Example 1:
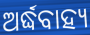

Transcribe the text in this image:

ଅର୍ଦ୍ଧବାହ୍ୟ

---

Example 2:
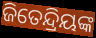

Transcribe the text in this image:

ଜିତେନ୍ଦ୍ରିୟଙ୍କ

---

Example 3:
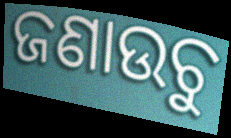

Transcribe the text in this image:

ଜଣାଉଚୁ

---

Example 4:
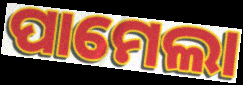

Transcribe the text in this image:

ପାମେଲା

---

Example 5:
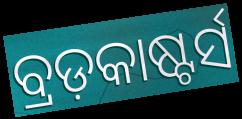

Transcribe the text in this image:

ବ୍ରଡ଼କାଷ୍ଟର୍ସ